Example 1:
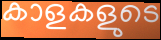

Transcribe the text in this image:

കാളകളുടെ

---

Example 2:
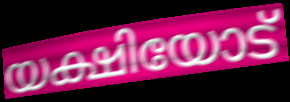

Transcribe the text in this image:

യക്ഷിയോട്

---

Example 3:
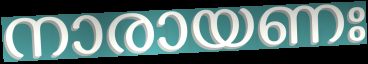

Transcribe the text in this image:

നാരായണഃ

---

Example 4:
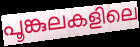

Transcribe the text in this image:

പൂങ്കുലകളിലെ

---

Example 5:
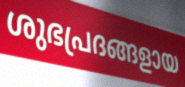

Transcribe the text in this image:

ശുഭപ്രദങ്ങളായ